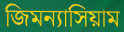
জিমন্যাসিয়াম